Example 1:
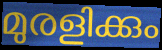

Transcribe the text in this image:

മുരളിക്കും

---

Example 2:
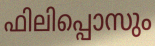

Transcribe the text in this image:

ഫിലിപ്പൊസും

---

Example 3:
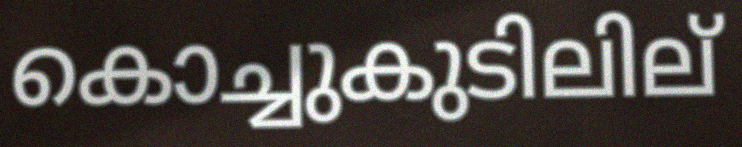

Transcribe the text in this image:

കൊച്ചുകുടിലില്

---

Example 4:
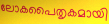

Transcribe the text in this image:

ലോകപൈതൃകമായി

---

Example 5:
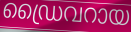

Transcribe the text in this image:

ഡ്രൈവറായ